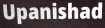
Upanishad